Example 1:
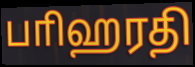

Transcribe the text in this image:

பரிஹரதி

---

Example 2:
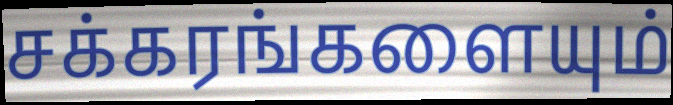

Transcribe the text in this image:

சக்கரங்களையும்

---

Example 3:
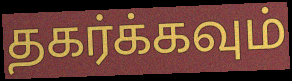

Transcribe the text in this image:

தகர்க்கவும்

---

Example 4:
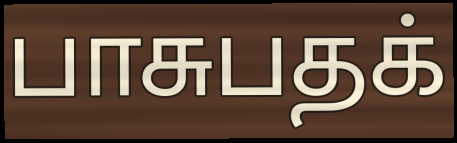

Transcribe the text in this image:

பாசுபதக்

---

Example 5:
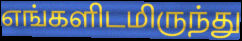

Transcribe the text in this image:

எங்களிடமிருந்து